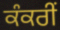
ਕੰਕਰੀਂ